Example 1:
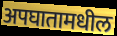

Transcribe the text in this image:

अपघातामधील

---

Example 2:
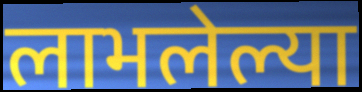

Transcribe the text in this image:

लाभलेल्या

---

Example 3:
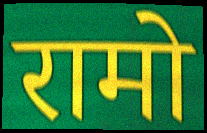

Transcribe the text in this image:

रामो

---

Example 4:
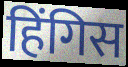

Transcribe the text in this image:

हिंगिस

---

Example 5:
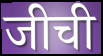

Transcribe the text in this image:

जीची